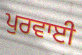
ਪੁਰਵਾਈ